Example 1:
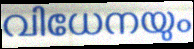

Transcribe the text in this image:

വിധേനയും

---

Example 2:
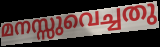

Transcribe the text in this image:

മനസ്സുവെച്ചതു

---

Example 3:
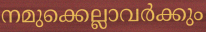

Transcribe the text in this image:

നമുക്കെല്ലാവർക്കും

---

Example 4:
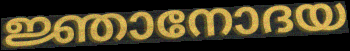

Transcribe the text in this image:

ജ്ഞാനോദയ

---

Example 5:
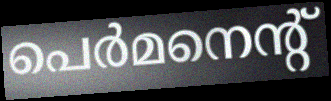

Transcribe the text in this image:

പെർമനെന്റ്